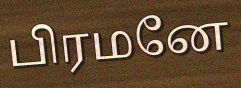
பிரமனே